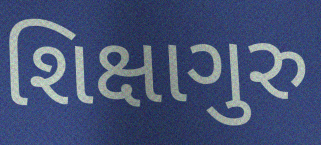
શિક્ષાગુરુ